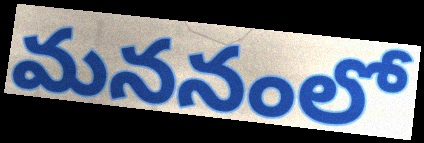
మననంలో